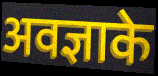
अवज्ञाके